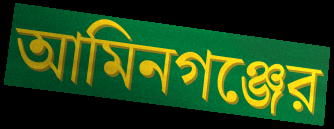
আমিনগঞ্জের